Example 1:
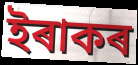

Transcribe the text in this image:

ইৰাকৰ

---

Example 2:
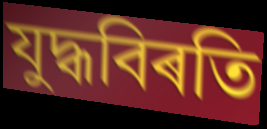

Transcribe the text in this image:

যুদ্ধবিৰতি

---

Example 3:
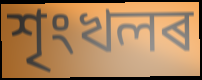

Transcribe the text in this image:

শৃংখলৰ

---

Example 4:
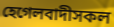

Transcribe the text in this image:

হেগেলবাদীসকল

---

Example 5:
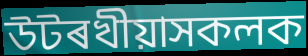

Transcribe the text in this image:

উটৰখীয়াসকলক